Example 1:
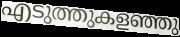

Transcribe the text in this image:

എടുത്തുകളഞ്ഞു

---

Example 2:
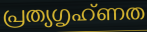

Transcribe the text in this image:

പ്രത്യഗൃഹ്ണത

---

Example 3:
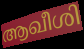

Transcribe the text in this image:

ആഖീശി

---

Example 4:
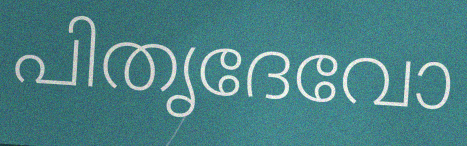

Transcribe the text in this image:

പിതൃദേവോ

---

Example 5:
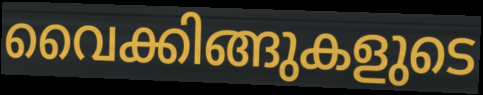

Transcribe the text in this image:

വൈക്കിങ്ങുകളുടെ